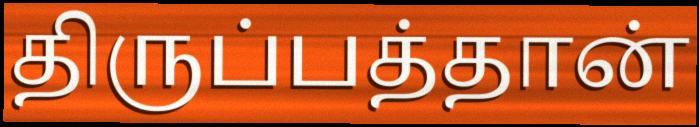
திருப்பத்தான்